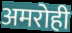
अमरोही